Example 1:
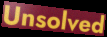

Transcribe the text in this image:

Unsolved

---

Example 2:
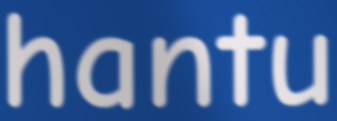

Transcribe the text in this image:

hantu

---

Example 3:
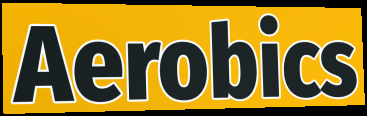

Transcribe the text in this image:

Aerobics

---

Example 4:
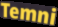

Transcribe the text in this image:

Temni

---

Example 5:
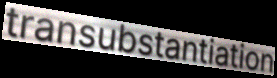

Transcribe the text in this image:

transubstantiation